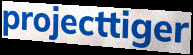
projecttiger